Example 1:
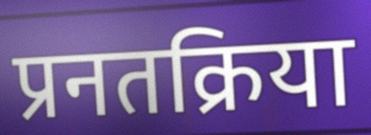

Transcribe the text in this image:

प्रनतक्रिया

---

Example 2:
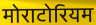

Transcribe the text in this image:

मोराटोरियम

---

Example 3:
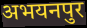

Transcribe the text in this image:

अभयनपुर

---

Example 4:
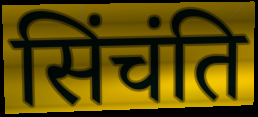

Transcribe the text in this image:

सिंचंति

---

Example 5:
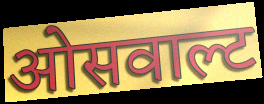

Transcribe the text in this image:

ओसवाल्ट